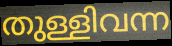
തുള്ളിവന്ന